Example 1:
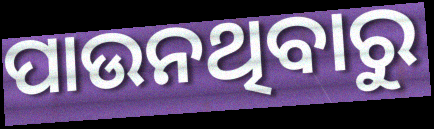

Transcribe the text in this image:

ପାଉନଥିବାରୁ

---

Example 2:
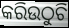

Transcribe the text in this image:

କରିଉଠୁଚି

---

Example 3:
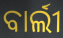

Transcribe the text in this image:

ବାର୍ଲୀ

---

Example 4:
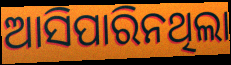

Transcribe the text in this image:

ଆସିପାରିନଥିଲା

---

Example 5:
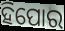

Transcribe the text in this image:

ହିପୋର